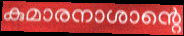
കുമാരനാശാന്റെ